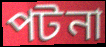
পটনা